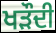
ਖੜੌਦੀ